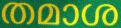
തമാശ